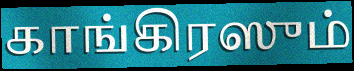
காங்கிரஸும்